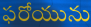
ఫరోయును